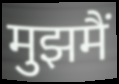
मुझमैं